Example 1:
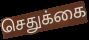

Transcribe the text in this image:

செதுக்கை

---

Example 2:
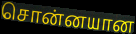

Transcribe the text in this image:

சொன்னயான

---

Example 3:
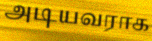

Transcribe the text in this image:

அடியவராக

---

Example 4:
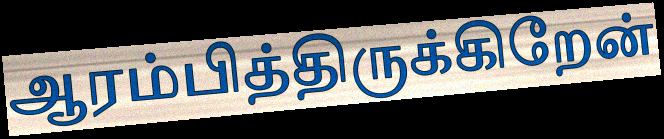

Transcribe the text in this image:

ஆரம்பித்திருக்கிறேன்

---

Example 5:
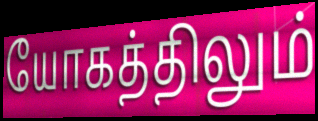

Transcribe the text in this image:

யோகத்திலும்